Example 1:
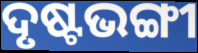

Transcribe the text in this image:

ଦୃଷ୍ଟଭଙ୍ଗୀ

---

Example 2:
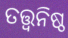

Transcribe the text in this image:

ତତ୍ତ୍ୱନିଷ୍ଠ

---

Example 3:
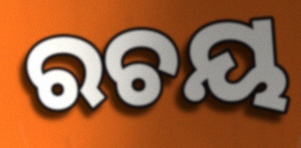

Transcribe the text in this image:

ରଚୟ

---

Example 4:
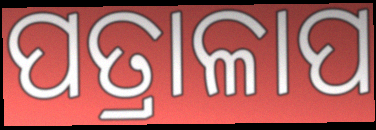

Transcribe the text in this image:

ପତ୍ରାଳାପ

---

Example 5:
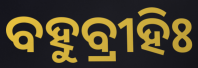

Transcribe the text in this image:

ବହୁବ୍ରୀହିଃ